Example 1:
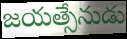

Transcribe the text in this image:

జయత్సేనుడు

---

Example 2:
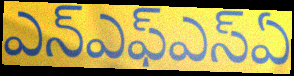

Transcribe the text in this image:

ఎన్ఎఫ్ఎస్ఏ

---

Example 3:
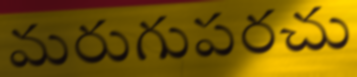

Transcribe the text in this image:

మరుగుపరచు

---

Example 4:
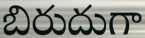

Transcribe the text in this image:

బిరుదుగా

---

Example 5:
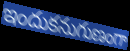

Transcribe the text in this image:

ఇందుకనుగుణంగా